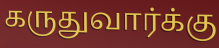
கருதுவார்க்கு